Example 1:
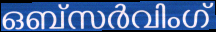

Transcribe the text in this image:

ഒബ്സർവിംഗ്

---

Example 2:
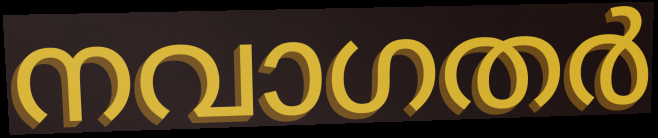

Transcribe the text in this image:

നവാഗതർ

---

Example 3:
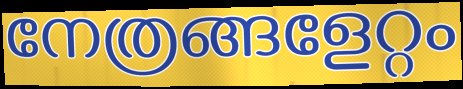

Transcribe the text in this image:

നേത്രങ്ങളേറ്റം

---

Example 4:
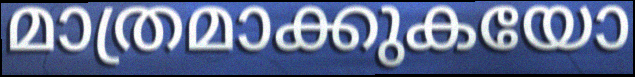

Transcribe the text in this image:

മാത്രമാക്കുകയോ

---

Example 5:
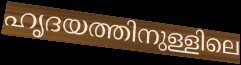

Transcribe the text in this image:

ഹൃദയത്തിനുള്ളിലെ